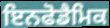
ਇਨਫੋਡੈਮਿਕ